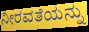
ನೀರವತೆಯನ್ನು